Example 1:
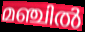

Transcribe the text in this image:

മഞ്ചിൽ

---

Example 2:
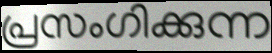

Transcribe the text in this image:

പ്രസംഗിക്കുന്ന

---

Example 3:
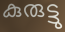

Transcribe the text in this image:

കുരുട്ടു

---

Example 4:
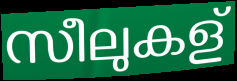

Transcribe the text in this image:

സീലുകള്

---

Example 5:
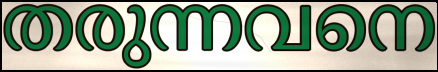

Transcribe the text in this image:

തരുന്നവനെ